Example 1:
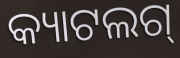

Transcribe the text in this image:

କ୍ୟାଟଲଗ୍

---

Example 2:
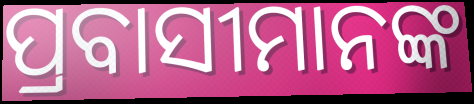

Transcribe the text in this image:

ପ୍ରବାସୀମାନଙ୍କ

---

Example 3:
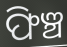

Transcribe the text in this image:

ଫିଞ୍ଚ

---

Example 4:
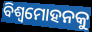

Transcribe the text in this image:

ବିଶ୍ଵମୋହନକୁ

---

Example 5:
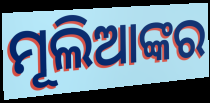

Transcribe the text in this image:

ମୂଲିଆଙ୍କର